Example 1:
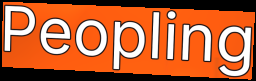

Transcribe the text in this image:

Peopling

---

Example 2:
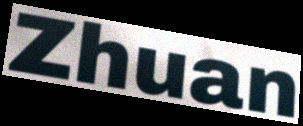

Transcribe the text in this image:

Zhuan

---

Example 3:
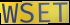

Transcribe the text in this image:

WSET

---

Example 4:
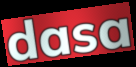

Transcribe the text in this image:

dasa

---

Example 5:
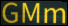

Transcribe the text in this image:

GMm